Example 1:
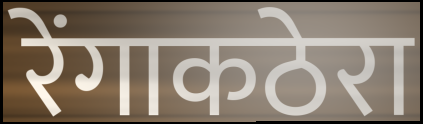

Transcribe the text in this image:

रेंगाकठेरा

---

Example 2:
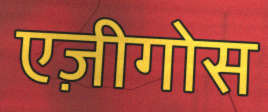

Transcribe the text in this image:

एज़ीगोस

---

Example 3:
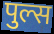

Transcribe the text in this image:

पुल्स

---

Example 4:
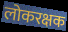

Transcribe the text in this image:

लोकरक्षक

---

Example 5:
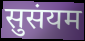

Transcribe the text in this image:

सुसंयम